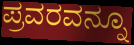
ಪ್ರವರವನ್ನೂ